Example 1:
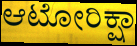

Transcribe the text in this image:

ಆಟೋರಿಕ್ಷಾ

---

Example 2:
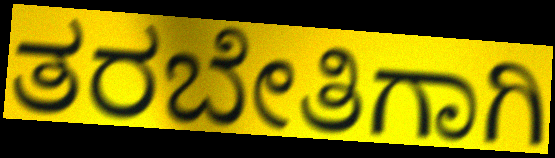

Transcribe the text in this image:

ತರಬೇತಿಗಾಗಿ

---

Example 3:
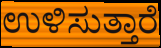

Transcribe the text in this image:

ಉಳಿಸುತ್ತಾರೆ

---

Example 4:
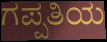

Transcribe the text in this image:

ಗಪ್ಪತಿಯ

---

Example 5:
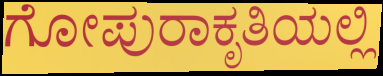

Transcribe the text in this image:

ಗೋಪುರಾಕೃತಿಯಲ್ಲಿ